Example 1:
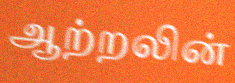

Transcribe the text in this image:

ஆற்றலின்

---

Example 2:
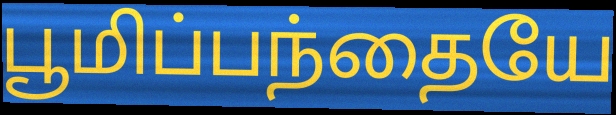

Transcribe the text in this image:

பூமிப்பந்தையே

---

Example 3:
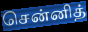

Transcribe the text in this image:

சென்னித்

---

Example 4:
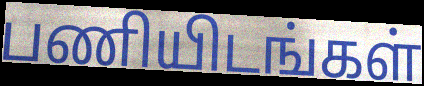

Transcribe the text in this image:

பணியிடங்கள்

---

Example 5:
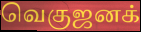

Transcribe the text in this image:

வெகுஜனக்